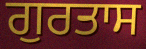
ਗੁਰਤਾਸ